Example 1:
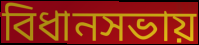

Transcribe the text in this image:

বিধানসভায়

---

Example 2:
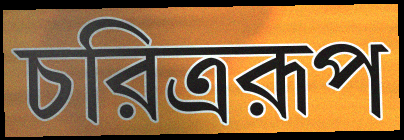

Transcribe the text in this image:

চরিত্ররূপ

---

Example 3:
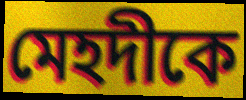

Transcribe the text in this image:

মেহদীকে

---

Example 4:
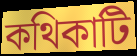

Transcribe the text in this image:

কথিকাটি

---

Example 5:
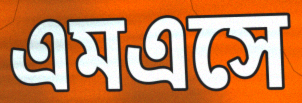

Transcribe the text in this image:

এমএসে